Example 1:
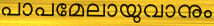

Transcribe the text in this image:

പാപമേലായുവാനും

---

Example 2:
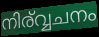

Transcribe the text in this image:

നിര്വ്വചനം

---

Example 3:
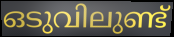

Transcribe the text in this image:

ഒടുവിലുണ്ട്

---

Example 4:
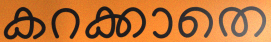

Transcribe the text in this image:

കറക്കാതെ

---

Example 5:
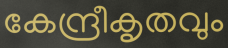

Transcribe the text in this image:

കേന്ദ്രീകൃതവും